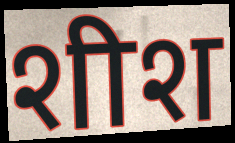
शीश